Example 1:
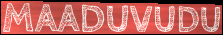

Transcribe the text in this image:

MAADUVUDU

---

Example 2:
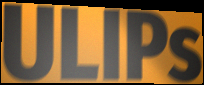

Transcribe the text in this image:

ULIPs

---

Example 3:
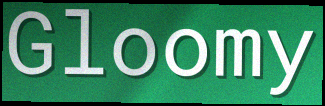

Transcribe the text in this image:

Gloomy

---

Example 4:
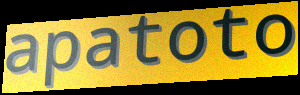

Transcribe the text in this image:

apatoto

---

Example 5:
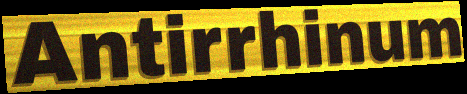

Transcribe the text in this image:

Antirrhinum